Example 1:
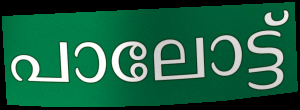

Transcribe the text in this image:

പാലോട്ട്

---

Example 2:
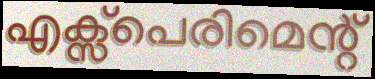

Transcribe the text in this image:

എക്സ്പെരിമെന്റ്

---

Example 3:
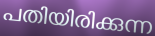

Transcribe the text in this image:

പതിയിരിക്കുന്ന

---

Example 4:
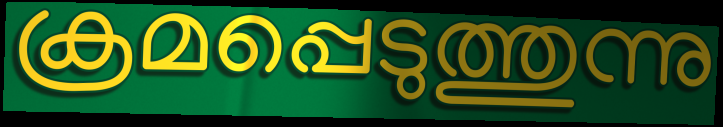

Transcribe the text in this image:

ക്രമപ്പെടുത്തുന്നു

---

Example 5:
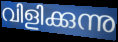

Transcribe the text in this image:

വിളിക്കുന്നു